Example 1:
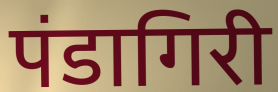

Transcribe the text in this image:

पंडागिरी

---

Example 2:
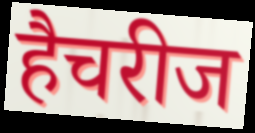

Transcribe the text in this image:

हैचरीज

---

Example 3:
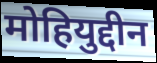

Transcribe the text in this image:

मोहियुद्दीन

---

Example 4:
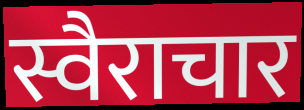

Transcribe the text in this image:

स्वैराचार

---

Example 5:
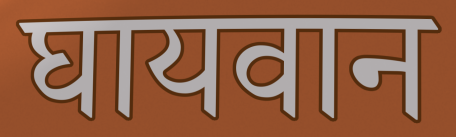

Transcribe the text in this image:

घायवान